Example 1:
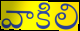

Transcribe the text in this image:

వాకిలి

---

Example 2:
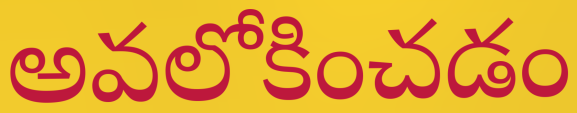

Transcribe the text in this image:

అవలోకించడం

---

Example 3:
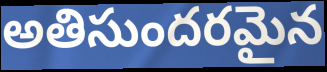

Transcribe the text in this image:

అతిసుందరమైన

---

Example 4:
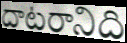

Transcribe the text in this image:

దాటరానిది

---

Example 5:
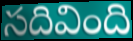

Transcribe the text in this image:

సదివింది